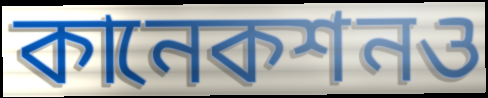
কানেকশনও